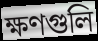
ক্ষণগুলি